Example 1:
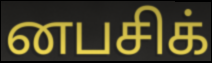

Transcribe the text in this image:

னபசிக்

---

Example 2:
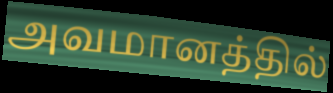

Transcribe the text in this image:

அவமானத்தில்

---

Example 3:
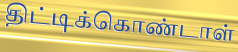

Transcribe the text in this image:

திட்டிக்கொண்டாள்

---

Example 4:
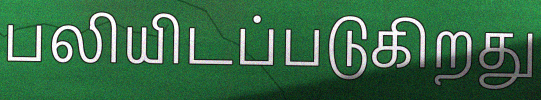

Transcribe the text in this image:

பலியிடப்படுகிறது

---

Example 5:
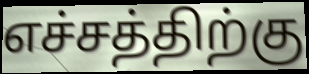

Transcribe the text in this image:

எச்சத்திற்கு